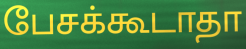
பேசக்கூடாதா